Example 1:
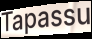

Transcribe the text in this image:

Tapassu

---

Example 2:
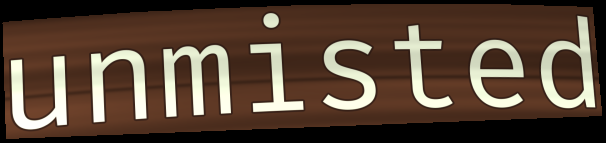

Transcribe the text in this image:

unmisted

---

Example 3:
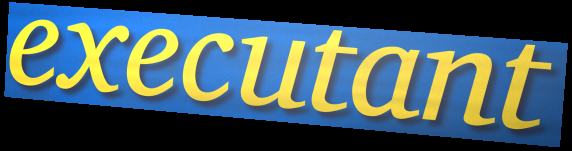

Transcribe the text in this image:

executant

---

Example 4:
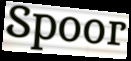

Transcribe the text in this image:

Spoor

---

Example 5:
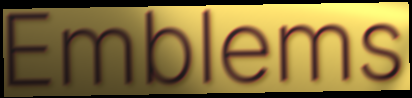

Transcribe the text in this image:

Emblems